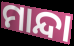
ମାନ୍ଦା